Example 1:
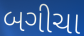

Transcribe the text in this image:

બગીચા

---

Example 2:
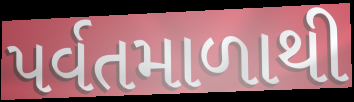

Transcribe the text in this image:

પર્વતમાળાથી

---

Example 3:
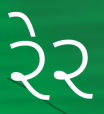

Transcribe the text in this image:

રેર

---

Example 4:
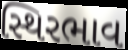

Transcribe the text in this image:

સ્થિરભાવ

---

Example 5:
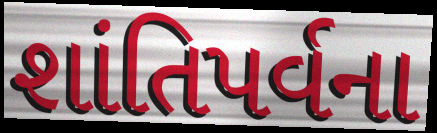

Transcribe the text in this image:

શાંતિપર્વના